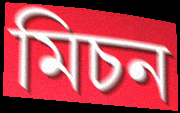
মিচন